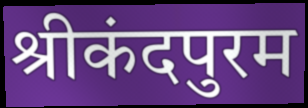
श्रीकंदपुरम